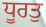
ਧੂਰਤੁ